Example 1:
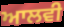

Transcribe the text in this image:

ਆਲਵੀ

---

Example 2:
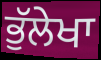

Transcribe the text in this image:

ਭੁੱਲੇਖਾ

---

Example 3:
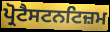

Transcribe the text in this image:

ਪ੍ਰੋਟੈਸਟਨਟਿਜ਼ਮ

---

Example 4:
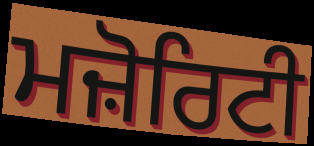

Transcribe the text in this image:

ਮਜ਼ੋਰਿਟੀ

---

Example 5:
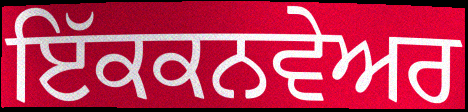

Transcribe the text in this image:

ਇੱਕਕਨਵੇਅਰ